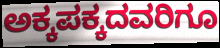
ಅಕ್ಕಪಕ್ಕದವರಿಗೂ